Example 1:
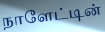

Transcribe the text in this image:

நாளேட்டின்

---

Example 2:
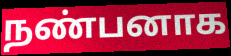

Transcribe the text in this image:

நண்பனாக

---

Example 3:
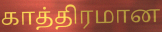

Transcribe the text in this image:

காத்திரமான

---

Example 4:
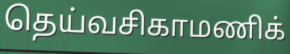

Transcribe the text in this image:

தெய்வசிகாமணிக்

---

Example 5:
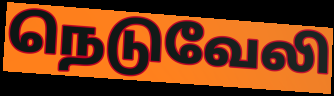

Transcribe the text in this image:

நெடுவேலி